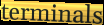
terminals